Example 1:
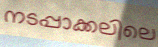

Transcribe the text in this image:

നടപ്പാക്കലിലെ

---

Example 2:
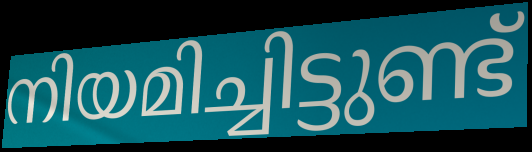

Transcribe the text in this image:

നിയമിച്ചിട്ടുണ്ട്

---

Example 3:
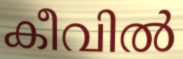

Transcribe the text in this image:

കീവിൽ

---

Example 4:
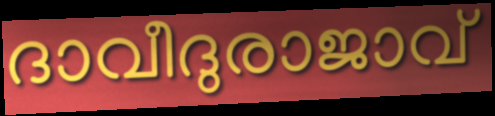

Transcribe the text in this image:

ദാവീദുരാജാവ്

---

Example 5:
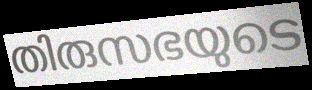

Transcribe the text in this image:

തിരുസഭയുടെ